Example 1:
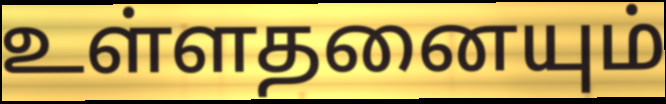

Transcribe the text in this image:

உள்ளதனையும்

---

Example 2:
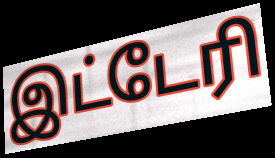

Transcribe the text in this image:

இட்டேரி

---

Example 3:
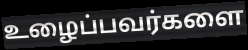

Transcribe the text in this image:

உழைப்பவர்களை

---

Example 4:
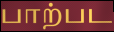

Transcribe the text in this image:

பாற்பட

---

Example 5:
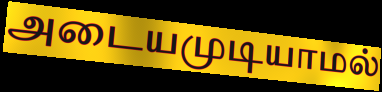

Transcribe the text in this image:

அடையமுடியாமல்